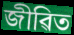
জীৱিত